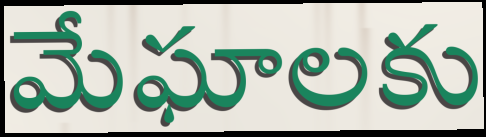
మేఘాలకు